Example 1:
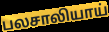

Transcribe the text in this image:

பலசாலியாய்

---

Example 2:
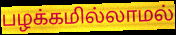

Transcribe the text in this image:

பழக்கமில்லாமல்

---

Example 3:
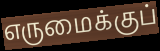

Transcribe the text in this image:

எருமைக்குப்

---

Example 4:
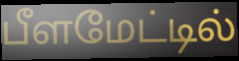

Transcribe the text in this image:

பீளமேட்டில்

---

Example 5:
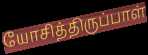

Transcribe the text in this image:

யோசித்திருப்பாள்